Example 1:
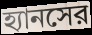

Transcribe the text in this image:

হ্যানসের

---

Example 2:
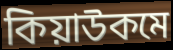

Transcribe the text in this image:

কিয়াউকমে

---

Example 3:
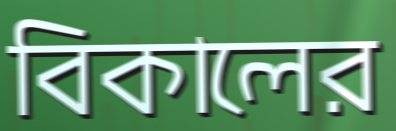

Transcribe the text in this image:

বিকালের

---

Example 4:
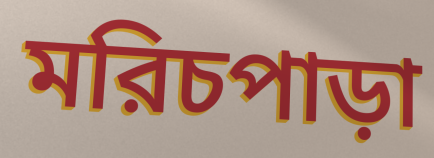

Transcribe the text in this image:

মরিচপাড়া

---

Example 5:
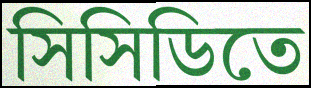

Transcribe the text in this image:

সিসিডিতে